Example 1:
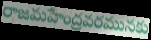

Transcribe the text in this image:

రాజమహేంద్రవరమునకు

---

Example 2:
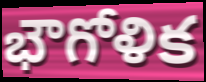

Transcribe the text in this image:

భౌగోళిక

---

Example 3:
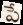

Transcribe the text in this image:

పే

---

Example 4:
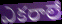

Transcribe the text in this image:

ఎకరాలే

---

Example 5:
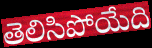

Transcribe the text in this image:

తెలిసిపోయేది